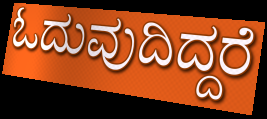
ಓದುವುದಿದ್ದರೆ